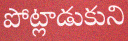
పోట్లాడుకుని